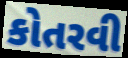
કોતરવી